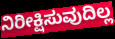
ನಿರೀಕ್ಷಿಸುವುದಿಲ್ಲ